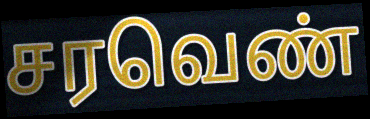
சரவெண்